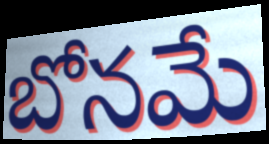
బోనమే